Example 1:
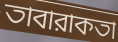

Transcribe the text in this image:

তাবারাকতা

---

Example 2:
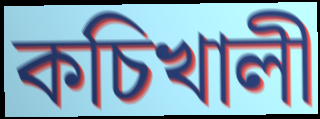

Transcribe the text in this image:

কচিখালী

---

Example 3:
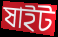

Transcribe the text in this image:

ষাইট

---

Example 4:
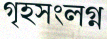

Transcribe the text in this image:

গৃহসংলগ্ন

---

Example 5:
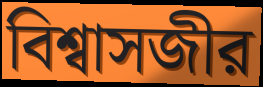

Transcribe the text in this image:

বিশ্বাসজীর